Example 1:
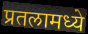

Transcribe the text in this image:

प्रतलामध्ये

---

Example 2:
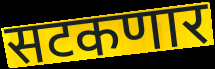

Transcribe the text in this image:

सटकणार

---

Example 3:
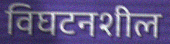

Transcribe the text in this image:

विघटनशील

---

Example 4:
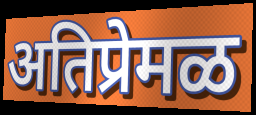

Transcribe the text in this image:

अतिप्रेमळ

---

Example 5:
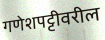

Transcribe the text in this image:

गणेशपट्टीवरील